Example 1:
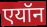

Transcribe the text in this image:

एयॉन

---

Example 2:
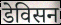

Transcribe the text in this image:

डेविसन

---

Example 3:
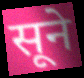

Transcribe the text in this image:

सूने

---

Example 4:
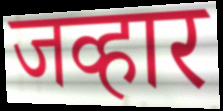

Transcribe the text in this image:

जव्हार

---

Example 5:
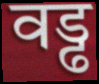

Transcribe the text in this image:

वड्ढ